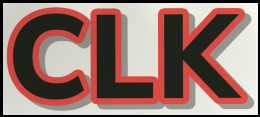
CLK